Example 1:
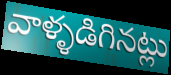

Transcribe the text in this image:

వాళ్ళడిగినట్లు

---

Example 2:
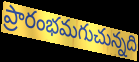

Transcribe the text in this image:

ప్రారంభమగుచున్నది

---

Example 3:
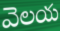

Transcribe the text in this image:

వెలయ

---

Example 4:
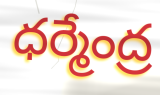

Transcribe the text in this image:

ధర్మేంద్ర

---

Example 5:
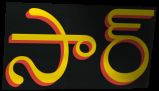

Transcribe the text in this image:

సార్